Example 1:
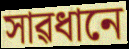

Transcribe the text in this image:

সাৱধানে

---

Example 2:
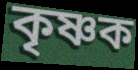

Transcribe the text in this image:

কৃষ্ণক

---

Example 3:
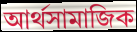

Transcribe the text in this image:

আৰ্থসামাজিক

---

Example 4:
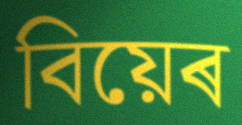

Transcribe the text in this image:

বিয়েৰ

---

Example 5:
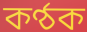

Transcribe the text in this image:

কণ্ঠক